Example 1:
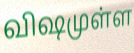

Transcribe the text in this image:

விஷமுள்ள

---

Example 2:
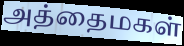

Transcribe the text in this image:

அத்தைமகள்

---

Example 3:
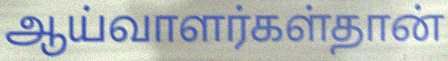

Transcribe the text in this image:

ஆய்வாளர்கள்தான்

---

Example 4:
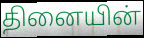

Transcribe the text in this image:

தினையின்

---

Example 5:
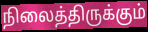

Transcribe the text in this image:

நிலைத்திருக்கும்